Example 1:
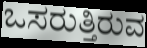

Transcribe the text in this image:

ಒಸರುತ್ತಿರುವ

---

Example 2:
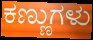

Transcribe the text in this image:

ಕಣ್ಣುಗಳು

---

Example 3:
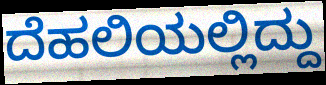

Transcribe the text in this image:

ದೆಹಲಿಯಲ್ಲಿದ್ದು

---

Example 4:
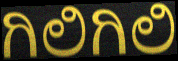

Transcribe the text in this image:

ಗಿಲಿಗಿಲಿ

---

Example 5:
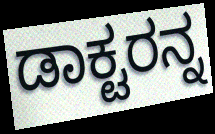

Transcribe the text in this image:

ಡಾಕ್ಟರನ್ನ